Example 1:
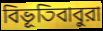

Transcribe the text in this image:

বিভূতিবাবুরা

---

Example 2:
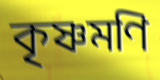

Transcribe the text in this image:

কৃষ্ণমণি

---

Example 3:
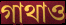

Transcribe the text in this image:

গাথাও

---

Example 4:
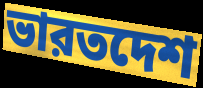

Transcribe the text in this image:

ভারতদেশ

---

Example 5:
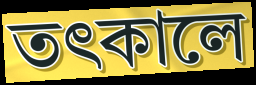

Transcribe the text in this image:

তৎকালে